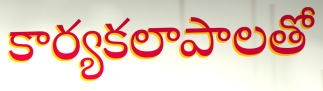
కార్యకలాపాలతో